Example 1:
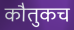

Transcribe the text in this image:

कौतुकच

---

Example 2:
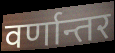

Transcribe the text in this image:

वर्णान्तर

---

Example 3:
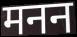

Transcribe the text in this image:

मनन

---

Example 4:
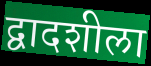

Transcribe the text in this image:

द्वादशीला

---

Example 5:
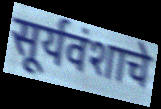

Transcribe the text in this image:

सूर्यवंशाचे